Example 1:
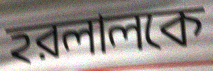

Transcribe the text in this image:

হরলালকে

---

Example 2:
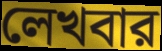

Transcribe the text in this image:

লেখবার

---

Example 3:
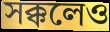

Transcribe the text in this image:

সক্কলেও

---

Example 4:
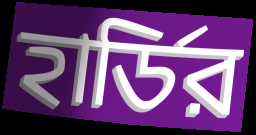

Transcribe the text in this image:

হার্ডির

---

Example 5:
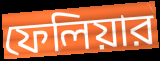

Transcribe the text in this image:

ফেলিয়ার